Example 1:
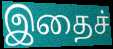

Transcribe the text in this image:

இதைச்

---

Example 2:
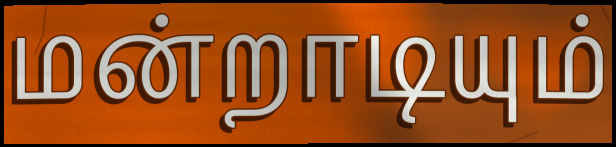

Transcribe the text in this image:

மன்றாடியும்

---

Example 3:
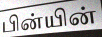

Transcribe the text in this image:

பின்யின்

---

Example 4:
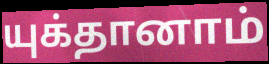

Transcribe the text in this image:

யுக்தானாம்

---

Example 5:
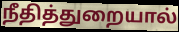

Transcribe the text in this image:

நீதித்துறையால்